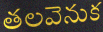
తలవెనుక